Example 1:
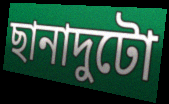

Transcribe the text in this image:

ছানাদুটো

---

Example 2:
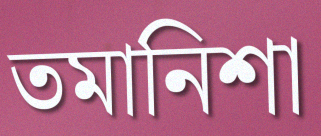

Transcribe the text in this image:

তমানিশা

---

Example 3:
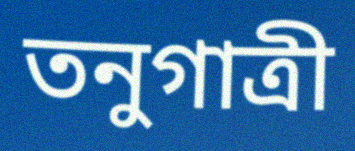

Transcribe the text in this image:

তনুগাত্রী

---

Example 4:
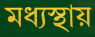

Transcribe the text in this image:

মধ্যস্থায়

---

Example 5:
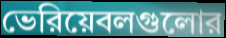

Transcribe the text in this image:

ভেরিয়েবলগুলোর